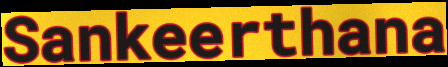
Sankeerthana